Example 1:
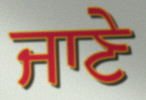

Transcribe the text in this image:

ਜਾਣੇ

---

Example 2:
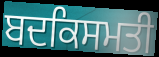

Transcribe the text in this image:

ਬਦਕਿਸਮਤੀ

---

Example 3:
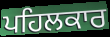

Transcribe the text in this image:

ਪਹਿਲਕਾਰ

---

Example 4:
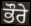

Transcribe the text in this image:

ਭੌਰੇ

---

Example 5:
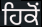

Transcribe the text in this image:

ਹਿਕੋਂ